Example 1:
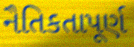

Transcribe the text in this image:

નૈતિકતાપૂર્ણ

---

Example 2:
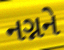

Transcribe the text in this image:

નગ્નને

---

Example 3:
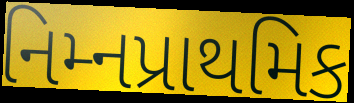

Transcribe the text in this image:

નિમ્નપ્રાથમિક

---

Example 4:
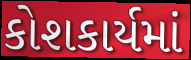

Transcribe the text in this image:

કોશકાર્યમાં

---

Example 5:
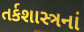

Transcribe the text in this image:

તર્કશાસ્ત્રનાં